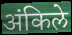
अंकिले